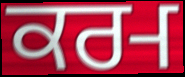
ਕਰ੍ਮ